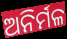
ଅନିର୍ମଳ